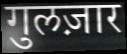
गुलज़ार